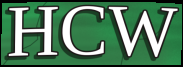
HCW